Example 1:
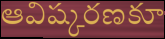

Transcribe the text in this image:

ఆవిష్కరణకూ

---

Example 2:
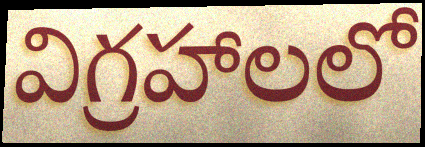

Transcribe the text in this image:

విగ్రహాలలో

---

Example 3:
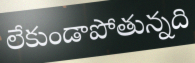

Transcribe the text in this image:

లేకుండాపోతున్నది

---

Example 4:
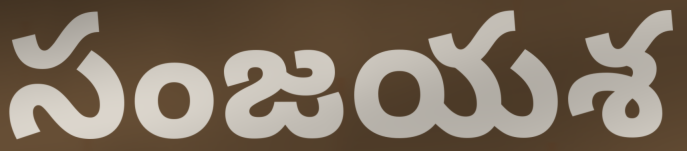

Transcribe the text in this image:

సంజయశ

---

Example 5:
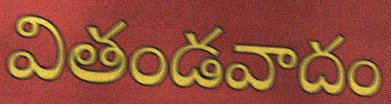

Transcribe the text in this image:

వితండవాదం